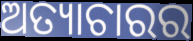
ଅତ୍ୟାଚାରର